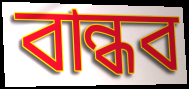
বান্ধব